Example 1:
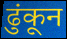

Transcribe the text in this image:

ढुंकून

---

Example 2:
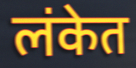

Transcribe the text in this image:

लंकेत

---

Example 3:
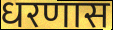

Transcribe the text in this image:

धरणास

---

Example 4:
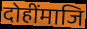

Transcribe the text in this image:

दोहींमाजि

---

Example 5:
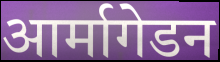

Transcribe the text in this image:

आर्मागेडन